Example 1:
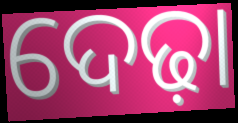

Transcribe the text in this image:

ଦେଢ଼ା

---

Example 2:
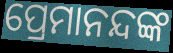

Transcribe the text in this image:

ପ୍ରେମାନନ୍ଦଙ୍କ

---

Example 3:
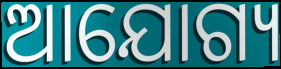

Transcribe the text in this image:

ଆଯୋଗ୍ୟ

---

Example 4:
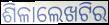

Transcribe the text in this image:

ଶିଳାଲେଖଟିର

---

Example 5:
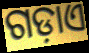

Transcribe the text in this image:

ଗଡ଼ାଏ